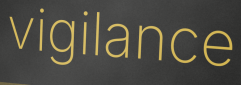
vigilance